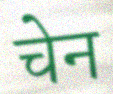
चेन